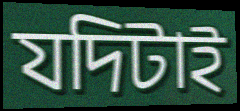
যদিটাই